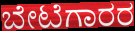
ಬೇಟೆಗಾರರ